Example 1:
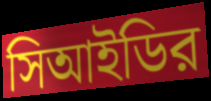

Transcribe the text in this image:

সিআইডির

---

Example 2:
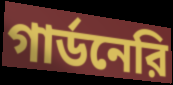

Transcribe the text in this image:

গার্ডনেরি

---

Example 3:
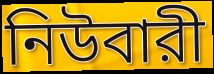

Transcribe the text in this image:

নিউবারী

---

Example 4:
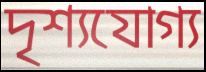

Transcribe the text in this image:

দৃশ্যযোগ্য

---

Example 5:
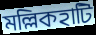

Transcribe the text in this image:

মল্লিকহাটি